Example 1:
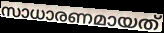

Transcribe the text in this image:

സാധാരണമായത്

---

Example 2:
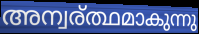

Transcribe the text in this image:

അന്വര്ത്ഥമാകുന്നു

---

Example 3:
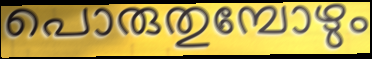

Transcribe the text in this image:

പൊരുതുമ്പോഴും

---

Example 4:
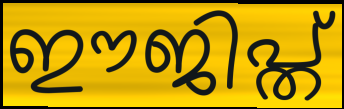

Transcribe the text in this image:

ഈജിപ്ത്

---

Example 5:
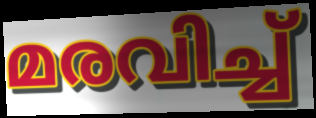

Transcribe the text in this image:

മരവിച്ച്